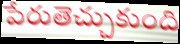
పేరుతెచ్చుకుంది